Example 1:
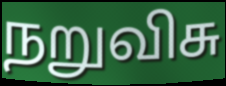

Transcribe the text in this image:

நறுவிசு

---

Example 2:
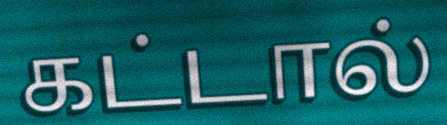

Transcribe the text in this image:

கட்டால்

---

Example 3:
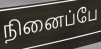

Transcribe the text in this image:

நினைப்பே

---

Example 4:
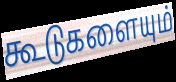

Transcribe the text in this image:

கூடுகளையும்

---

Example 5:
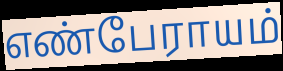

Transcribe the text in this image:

எண்பேராயம்